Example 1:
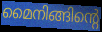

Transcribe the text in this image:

മൈനിങ്ങിന്റെ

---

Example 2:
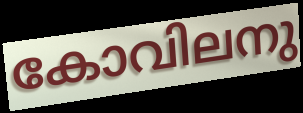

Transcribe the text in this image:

കോവിലനു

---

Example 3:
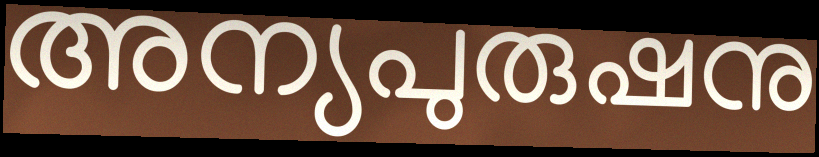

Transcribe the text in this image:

അന്യപുരുഷനു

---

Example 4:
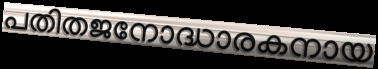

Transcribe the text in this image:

പതിതജനോദ്ധാരകനായ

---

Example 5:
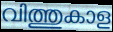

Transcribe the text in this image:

വിത്തുകാള